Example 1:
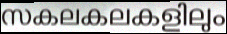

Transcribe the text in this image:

സകലകലകളിലും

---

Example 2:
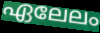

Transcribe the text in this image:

ഏലേലം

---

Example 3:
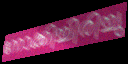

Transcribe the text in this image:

നോക്കിച്ചിരിച്ചു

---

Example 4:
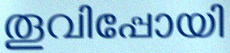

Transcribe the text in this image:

തൂവിപ്പോയി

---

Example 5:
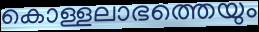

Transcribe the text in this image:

കൊള്ളലാഭത്തെയും